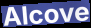
Alcove